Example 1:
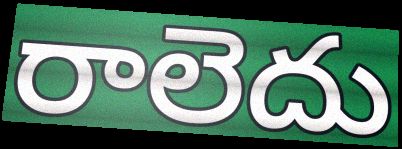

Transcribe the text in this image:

రాలెదు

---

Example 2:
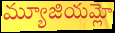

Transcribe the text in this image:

మ్యూజియమ్లో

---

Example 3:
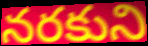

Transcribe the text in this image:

నరకుని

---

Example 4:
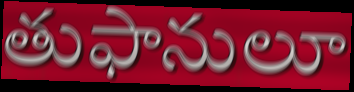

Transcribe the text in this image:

తుఫానులూ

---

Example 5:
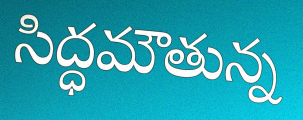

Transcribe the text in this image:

సిద్ధమౌతున్న